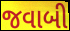
જવાબી